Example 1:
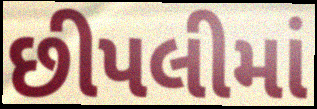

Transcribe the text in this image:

છીપલીમાં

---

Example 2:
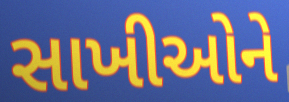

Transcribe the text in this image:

સાખીઓને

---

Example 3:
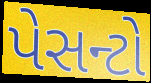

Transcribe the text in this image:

પેસન્ટો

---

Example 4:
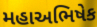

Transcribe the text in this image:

મહાઅભિષેક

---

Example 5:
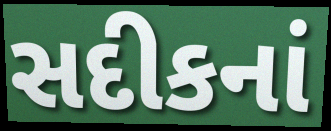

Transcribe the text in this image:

સદીકનાં